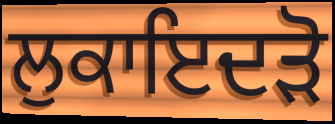
ਲੁਕਾਇਦੜੋ